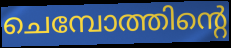
ചെമ്പോത്തിന്റെ